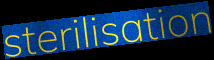
sterilisation